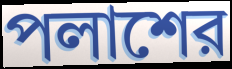
পলাশের